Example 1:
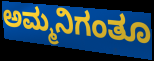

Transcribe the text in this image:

ಅಮ್ಮನಿಗಂತೂ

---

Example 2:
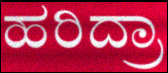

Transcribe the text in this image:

ಹರಿದ್ರಾ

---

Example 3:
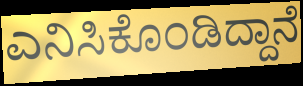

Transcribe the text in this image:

ಎನಿಸಿಕೊಂಡಿದ್ದಾನೆ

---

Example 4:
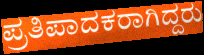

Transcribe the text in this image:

ಪ್ರತಿಪಾದಕರಾಗಿದ್ದರು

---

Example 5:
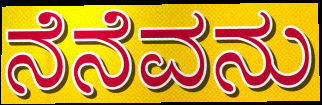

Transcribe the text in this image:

ನೆನೆವನು